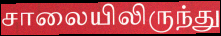
சாலையிலிருந்து